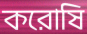
করোষি